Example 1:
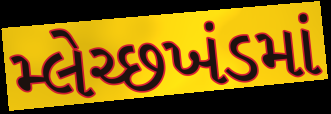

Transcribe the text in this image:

મ્લેચ્છખંડમાં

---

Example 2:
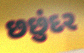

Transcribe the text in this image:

છછુંદર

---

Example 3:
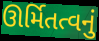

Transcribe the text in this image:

ઊર્મિતત્વનું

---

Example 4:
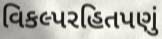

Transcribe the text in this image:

વિકલ્પરહિતપણું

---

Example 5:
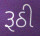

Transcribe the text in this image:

રૂઠી